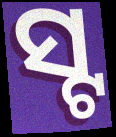
ସ୍ଟ